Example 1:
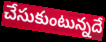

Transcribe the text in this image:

చేసుకుంటున్నదే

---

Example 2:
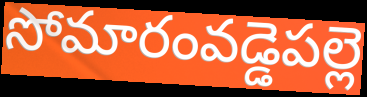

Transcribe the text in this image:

సోమారంవడ్డెపల్లె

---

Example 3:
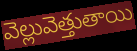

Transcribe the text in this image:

వెల్లువెత్తుతాయి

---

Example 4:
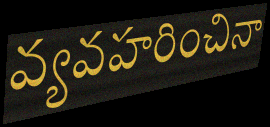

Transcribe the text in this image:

వ్యవహరించినా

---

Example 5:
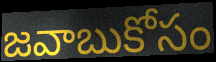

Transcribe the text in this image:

జవాబుకోసం